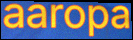
aaropa